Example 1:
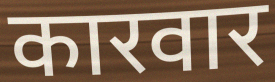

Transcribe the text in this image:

कारवार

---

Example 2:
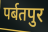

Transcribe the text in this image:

पर्बतपुर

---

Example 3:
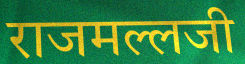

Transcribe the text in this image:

राजमल्लजी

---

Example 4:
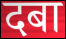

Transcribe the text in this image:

दबा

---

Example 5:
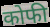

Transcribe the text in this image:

कोफी